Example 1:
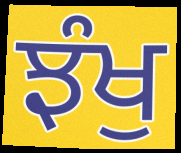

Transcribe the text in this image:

ਝੰਖੁ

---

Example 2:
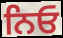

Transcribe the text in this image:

ਨਿਓ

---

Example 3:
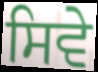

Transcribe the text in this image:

ਸਿਵੇ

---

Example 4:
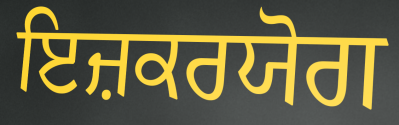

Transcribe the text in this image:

ਇਜ਼ਕਰਯੋਗ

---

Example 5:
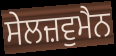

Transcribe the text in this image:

ਸੇਲਜ਼ਵੁਮੈਨ